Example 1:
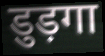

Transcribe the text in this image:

डुड़गा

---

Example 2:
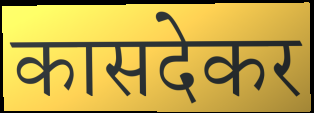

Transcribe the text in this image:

कासदेकर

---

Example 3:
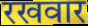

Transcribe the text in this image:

रखवार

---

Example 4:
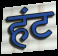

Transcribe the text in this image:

हंट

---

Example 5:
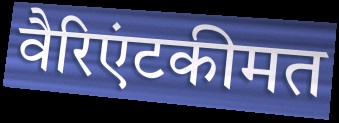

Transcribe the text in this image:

वैरिएंटकीमत